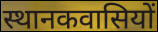
स्थानकवासियों